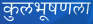
कुलभूषणला